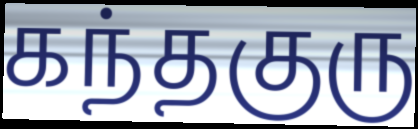
கந்தகுரு